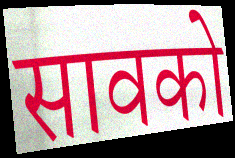
सावको